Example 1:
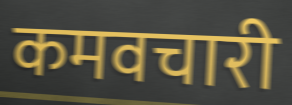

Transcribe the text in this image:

कमवचारी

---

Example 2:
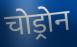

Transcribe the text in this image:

चोड्रोन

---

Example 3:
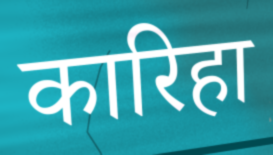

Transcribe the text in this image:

कारिहा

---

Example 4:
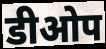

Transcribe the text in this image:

डीओप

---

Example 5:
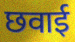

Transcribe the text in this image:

छवाई